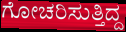
ಗೋಚರಿಸುತ್ತಿದ್ದ